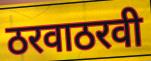
ठरवाठरवी